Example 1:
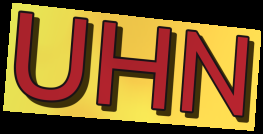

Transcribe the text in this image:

UHN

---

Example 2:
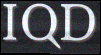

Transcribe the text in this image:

IQD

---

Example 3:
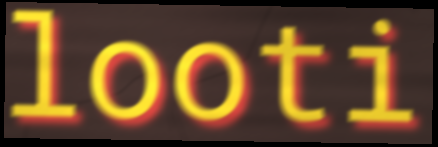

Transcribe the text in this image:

looti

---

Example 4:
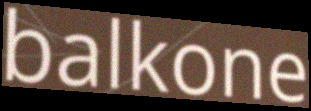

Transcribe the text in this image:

balkone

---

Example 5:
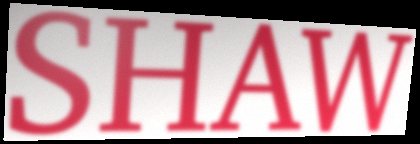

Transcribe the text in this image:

SHAW